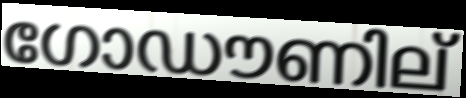
ഗോഡൗണില്